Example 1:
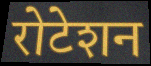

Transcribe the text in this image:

रोटेशन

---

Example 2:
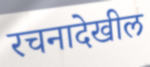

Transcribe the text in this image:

रचनादेखील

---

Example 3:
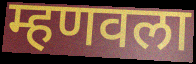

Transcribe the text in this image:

म्हणवला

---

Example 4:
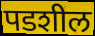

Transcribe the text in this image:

पडशील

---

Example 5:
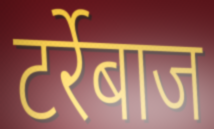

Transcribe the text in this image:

टर्रेबाज